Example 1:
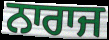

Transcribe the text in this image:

ਨਾਰਾਜ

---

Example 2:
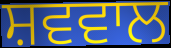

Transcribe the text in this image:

ਸ਼ਵਵਾਲ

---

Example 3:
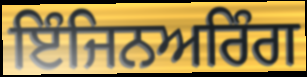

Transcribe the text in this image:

ਇੰਜਿਨਅਰਿੰਗ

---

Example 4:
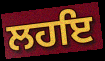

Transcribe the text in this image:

ਲਹਇ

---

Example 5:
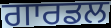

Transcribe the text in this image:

ਗਾਰਡਲ